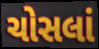
ચોસલાં